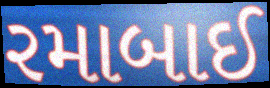
રમાબાઈ